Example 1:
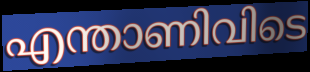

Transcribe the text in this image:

എന്താണിവിടെ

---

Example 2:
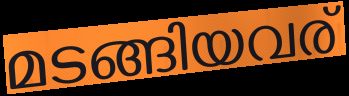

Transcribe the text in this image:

മടങ്ങിയവര്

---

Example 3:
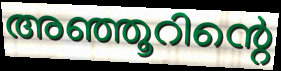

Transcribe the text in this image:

അഞ്ഞൂറിന്റെ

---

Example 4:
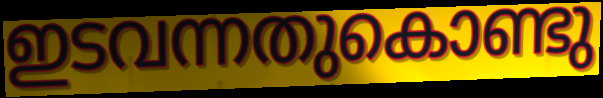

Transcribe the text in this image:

ഇടവന്നതുകൊണ്ടു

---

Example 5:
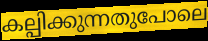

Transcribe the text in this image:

കല്പിക്കുന്നതുപോലെ